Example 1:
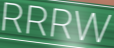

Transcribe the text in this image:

RRRW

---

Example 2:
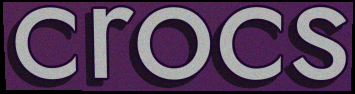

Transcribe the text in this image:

crocs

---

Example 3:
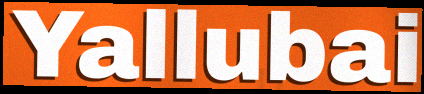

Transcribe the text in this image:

Yallubai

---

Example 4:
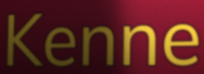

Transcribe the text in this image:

Kenne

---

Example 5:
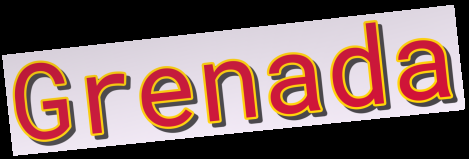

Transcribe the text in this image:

Grenada